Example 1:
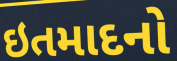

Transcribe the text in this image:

ઇતમાદનો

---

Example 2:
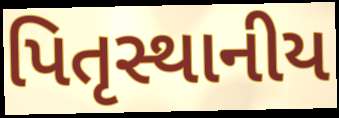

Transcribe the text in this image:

પિતૃસ્થાનીય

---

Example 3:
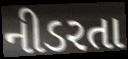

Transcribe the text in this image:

નીડરતા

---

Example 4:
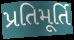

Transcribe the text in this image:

પ્રતિમૂર્તિ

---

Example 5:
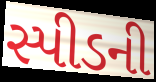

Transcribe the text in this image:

સ્પીડની